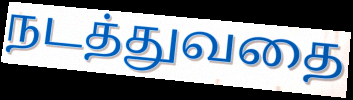
நடத்துவதை